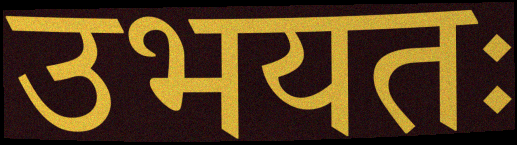
उभयतः